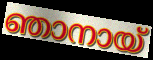
ഞാനായ്